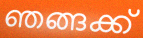
ഞങ്ങക്ക്